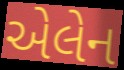
એલેન